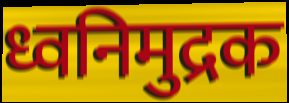
ध्वनिमुद्रक